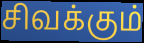
சிவக்கும்